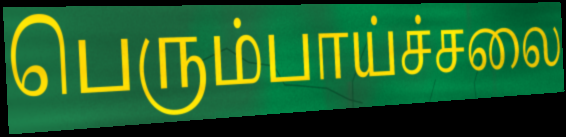
பெரும்பாய்ச்சலை